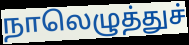
நாலெழுத்துச்